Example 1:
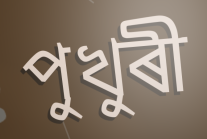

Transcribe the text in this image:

পুখুৰী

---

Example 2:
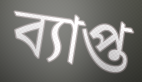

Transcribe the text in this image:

ব্যাপ্ত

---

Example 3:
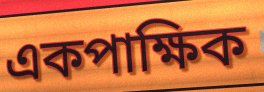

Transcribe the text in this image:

একপাক্ষিক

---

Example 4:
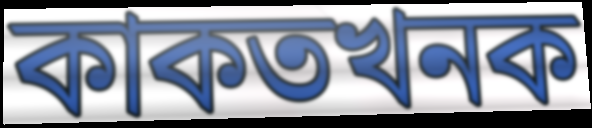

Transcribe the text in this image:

কাকতখনক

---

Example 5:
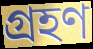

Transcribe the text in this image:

গ্ৰহণ